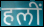
हलीं